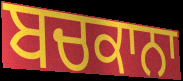
ਬਚਕਾਨਾ